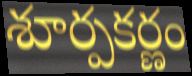
శూర్పకర్ణం